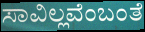
ಸಾವಿಲ್ಲವೆಂಬಂತೆ